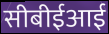
सीबीईआई